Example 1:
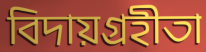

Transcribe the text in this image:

বিদায়গ্রহীতা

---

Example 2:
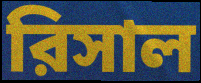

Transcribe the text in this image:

রিসাল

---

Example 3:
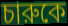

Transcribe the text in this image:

চারুকে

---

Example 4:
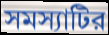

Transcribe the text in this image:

সমস্যাটির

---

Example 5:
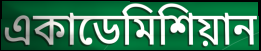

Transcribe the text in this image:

একাডেমিশিয়ান